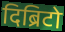
दिब्रिटो